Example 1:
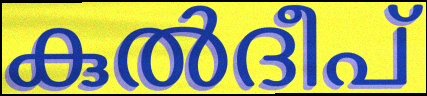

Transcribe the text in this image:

കുൽദീപ്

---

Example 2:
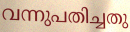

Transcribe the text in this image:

വന്നുപതിച്ചതു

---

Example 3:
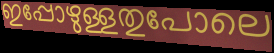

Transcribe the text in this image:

ഇപ്പോഴുള്ളതുപോലെ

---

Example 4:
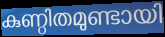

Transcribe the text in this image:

കുണ്ഠിതമുണ്ടായി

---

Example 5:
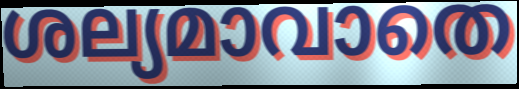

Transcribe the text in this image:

ശല്യമാവാതെ